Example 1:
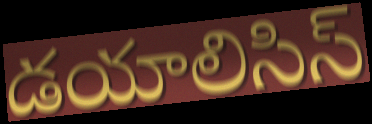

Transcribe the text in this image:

డయాలిసిస్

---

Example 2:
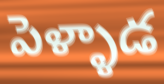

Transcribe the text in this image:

పెళ్ళాడ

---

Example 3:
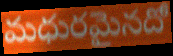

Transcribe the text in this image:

మధురమైనదో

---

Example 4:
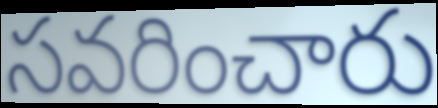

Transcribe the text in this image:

సవరించారు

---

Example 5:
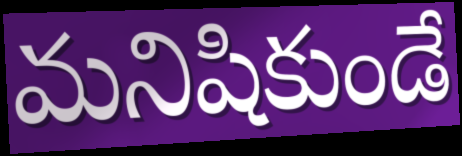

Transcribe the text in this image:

మనిషికుండే